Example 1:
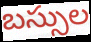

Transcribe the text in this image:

బస్సుల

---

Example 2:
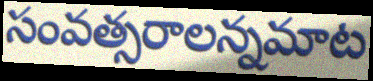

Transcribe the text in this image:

సంవత్సరాలన్నమాట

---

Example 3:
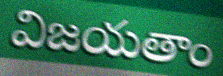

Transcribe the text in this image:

విజయతాం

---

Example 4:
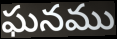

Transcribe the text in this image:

ఘనము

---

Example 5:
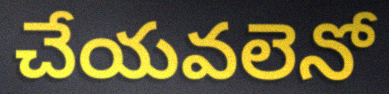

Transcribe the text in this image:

చేయవలెనో